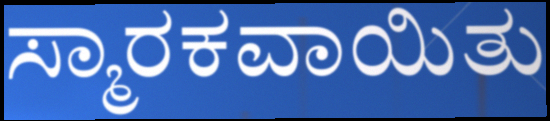
ಸ್ಮಾರಕವಾಯಿತು